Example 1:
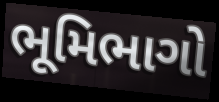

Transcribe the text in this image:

ભૂમિભાગો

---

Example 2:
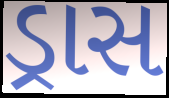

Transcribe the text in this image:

ડ્રાસ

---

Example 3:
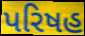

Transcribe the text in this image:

પરિષહ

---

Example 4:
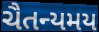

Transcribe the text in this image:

ચૈતન્યમય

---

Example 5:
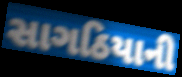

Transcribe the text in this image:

સાગઠિયાની